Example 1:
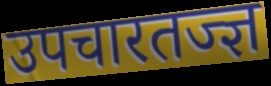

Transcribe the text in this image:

उपचारतज्ज्ञ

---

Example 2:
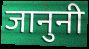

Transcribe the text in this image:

जानुनी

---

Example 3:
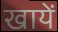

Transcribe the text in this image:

खायें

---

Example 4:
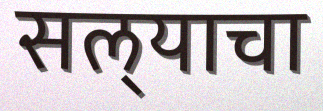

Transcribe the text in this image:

सल्याचा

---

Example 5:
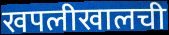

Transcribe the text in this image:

खपलीखालची